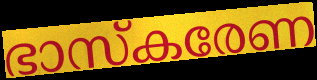
ഭാസ്കരേണ